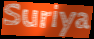
Suriya